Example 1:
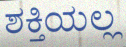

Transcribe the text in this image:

ಶಕ್ತಿಯಲ್ಲ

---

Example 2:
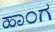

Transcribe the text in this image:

ಹಾಂಗ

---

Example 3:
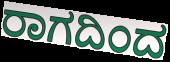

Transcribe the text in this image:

ರಾಗದಿಂದ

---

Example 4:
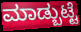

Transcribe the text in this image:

ಮಾಡ್ಬುಟ್ಟೆ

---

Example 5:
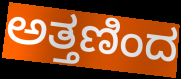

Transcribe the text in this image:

ಅತ್ತಣಿಂದ